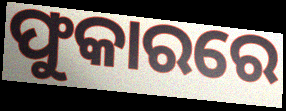
ଫୁକାରରେ